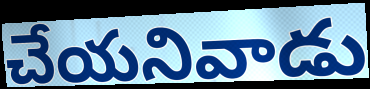
చేయనివాడు